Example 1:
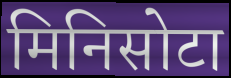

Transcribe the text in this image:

मिनिसोटा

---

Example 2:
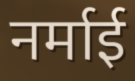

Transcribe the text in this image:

नर्माई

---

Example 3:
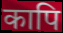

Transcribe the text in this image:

कापि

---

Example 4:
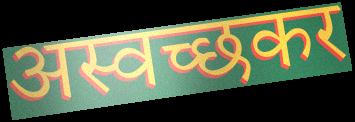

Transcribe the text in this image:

अस्वच्छकर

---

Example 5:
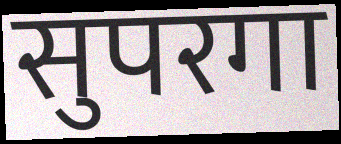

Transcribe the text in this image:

सुपरगा